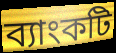
ব্যাংকটি